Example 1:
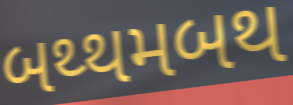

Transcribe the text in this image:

બથ્થમબથ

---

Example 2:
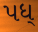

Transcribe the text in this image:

પધ્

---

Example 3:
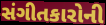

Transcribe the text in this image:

સંગીતકારોની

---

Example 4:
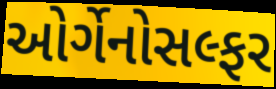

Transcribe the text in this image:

ઓર્ગેનોસલ્ફર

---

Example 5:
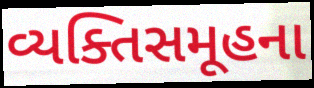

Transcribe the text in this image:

વ્યક્તિસમૂહના